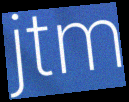
jtm